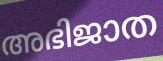
അഭിജാത